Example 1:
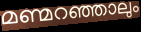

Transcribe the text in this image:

മണ്മറഞ്ഞാലും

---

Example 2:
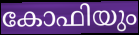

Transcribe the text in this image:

കോഫിയും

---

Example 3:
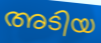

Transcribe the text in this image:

അടിയ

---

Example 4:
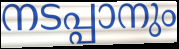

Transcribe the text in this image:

നടപ്പാനും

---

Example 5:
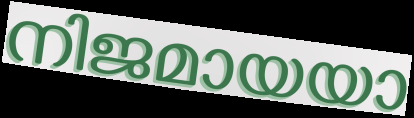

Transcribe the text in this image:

നിജമായയാ